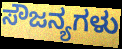
ಸೌಜನ್ಯಗಳು